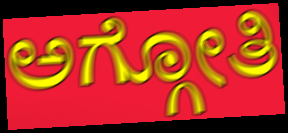
ಅಗ್ಗೋತಿ